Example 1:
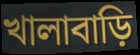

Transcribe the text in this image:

খালাবাড়ি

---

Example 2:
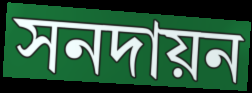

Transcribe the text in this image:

সনদায়ন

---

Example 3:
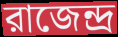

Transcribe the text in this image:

রাজেন্দ্র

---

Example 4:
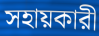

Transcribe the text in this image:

সহায়কারী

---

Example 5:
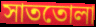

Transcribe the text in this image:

সাততোলা